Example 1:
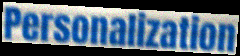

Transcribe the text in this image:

Personalization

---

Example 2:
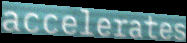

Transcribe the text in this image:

accelerates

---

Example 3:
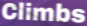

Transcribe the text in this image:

Climbs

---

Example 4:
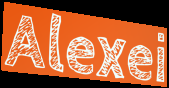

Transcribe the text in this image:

Alexei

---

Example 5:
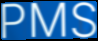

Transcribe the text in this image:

PMS